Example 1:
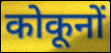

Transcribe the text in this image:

कोकूनों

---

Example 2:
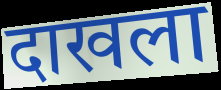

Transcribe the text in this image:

दाखला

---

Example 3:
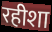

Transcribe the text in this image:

रहीशा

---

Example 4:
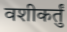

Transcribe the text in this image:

वशीकर्तुं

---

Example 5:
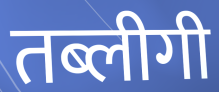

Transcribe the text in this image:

तब्‍लीगी